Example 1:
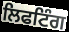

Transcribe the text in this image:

ਲਿਫਟਿੰਗ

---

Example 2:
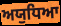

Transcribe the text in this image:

ਅਯੁਧਿਆ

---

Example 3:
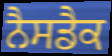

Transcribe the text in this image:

ਨੈਸਡੈਕ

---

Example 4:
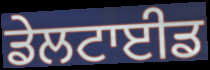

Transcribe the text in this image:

ਡੇਲਟਾਈਡ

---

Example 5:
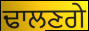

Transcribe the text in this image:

ਢਾਲਣਗੇ